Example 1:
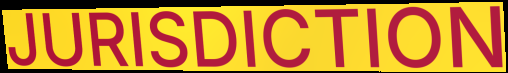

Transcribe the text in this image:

JURISDICTION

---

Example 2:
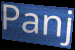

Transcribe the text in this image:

Panj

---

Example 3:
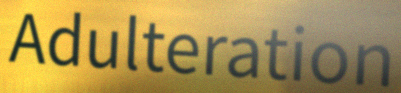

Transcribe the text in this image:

Adulteration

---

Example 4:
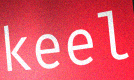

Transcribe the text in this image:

keel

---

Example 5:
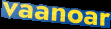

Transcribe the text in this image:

vaanoar